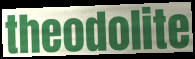
theodolite